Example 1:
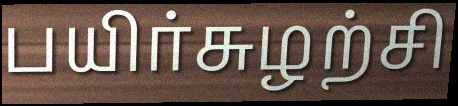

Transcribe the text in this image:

பயிர்சுழற்சி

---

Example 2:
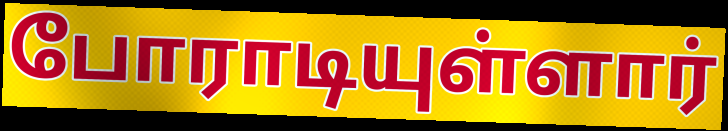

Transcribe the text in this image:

போராடியுள்ளார்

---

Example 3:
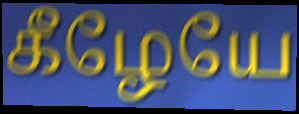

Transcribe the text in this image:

கீழேயே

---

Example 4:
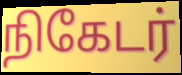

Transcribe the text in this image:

நிகேடர்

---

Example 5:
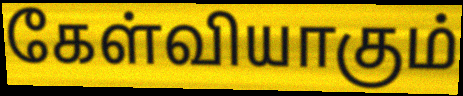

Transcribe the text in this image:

கேள்வியாகும்